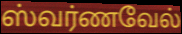
ஸ்வர்ணவேல்